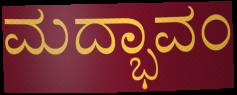
ಮದ್ಭಾವಂ